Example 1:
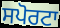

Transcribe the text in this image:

ਸਪੋਰਟਾ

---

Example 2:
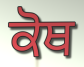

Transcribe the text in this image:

ਕੋਥ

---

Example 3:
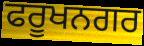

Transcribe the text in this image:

ਫਰੂਖਨਗਰ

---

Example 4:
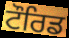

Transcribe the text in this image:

ਟੌਰਿਡ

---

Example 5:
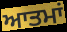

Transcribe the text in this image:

ਆਤਮਾਂ